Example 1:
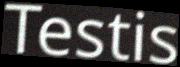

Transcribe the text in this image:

Testis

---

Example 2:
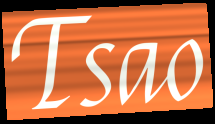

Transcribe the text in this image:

Tsao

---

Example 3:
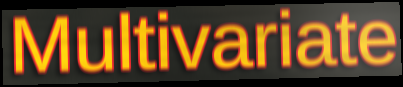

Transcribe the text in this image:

Multivariate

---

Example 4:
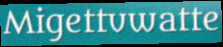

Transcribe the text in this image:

Migettuwatte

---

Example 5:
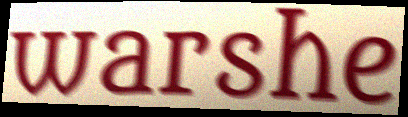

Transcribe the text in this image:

warshe